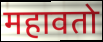
महावतो